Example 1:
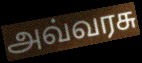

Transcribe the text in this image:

அவ்வரசு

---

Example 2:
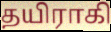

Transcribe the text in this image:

தயிராகி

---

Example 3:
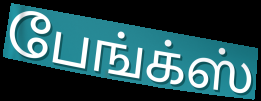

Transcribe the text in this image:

பேங்க்ஸ்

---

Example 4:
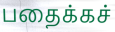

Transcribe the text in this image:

பதைக்கச்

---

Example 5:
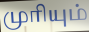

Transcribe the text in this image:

முரியும்